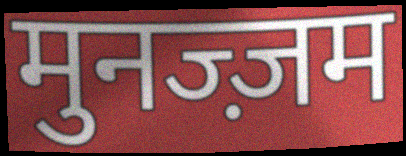
मुनज्ज़म